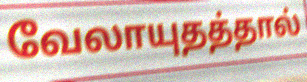
வேலாயுதத்தால்